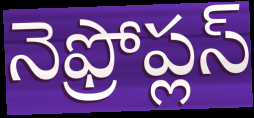
నెఫ్రోప్లస్